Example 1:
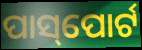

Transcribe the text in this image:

ପାସ୍‌ପୋର୍ଟ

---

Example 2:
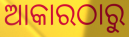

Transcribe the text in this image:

ଆକାରଠାରୁ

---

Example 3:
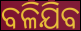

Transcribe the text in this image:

ବଳିଯିବ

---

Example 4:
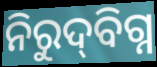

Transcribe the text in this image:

ନିରୁଦ୍‍ବିଗ୍ନ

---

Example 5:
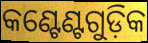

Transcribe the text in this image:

କଣ୍ଟେଣ୍ଟଗୁଡ଼ିକ